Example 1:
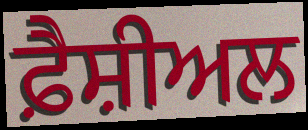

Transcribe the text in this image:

ਫ਼ੈਸ਼ੀਅਲ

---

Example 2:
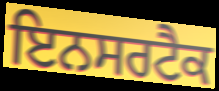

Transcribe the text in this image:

ਇਨਸਰਟੈਕ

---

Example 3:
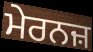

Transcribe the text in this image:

ਮੇਰਨਜ਼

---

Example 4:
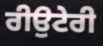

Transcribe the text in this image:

ਰੀਉਟੇਰੀ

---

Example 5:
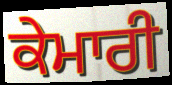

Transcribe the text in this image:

ਕੇਮਾਰੀ